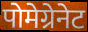
पोमेग्रेनेट